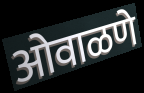
ओवाळणे